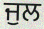
ਜੁਲ